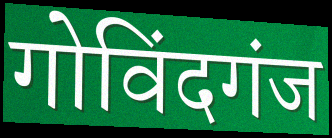
गोविंदगंज